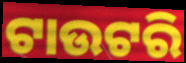
ଟାଉଟରି